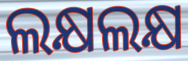
ଲକ୍ଷଲକ୍ଷ